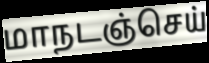
மாநடஞ்செய்